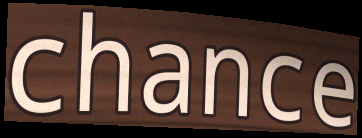
chance